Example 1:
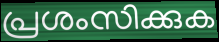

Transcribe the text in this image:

പ്രശംസിക്കുക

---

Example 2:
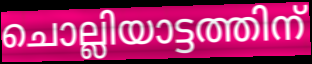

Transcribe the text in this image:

ചൊല്ലിയാട്ടത്തിന്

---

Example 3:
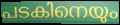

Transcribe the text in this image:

പടകിനെയും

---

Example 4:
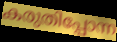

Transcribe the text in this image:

കരുതിപ്പോന്ന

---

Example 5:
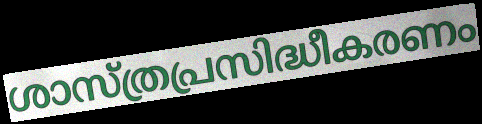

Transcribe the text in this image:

ശാസ്ത്രപ്രസിദ്ധീകരണം